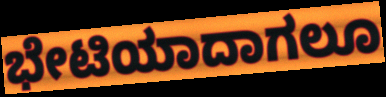
ಭೇಟಿಯಾದಾಗಲೂ